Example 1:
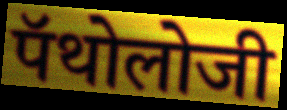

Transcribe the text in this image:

पॅथोलोजी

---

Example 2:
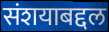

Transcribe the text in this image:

संशयाबद्दल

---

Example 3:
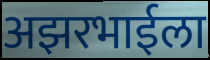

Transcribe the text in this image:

अझरभाईला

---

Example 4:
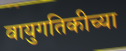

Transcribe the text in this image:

वायुगतिकीच्या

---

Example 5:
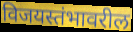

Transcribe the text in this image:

विजयस्तंभावरील